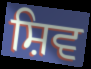
ਸ਼ਿਵ